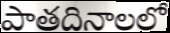
పాతదినాలలో